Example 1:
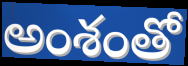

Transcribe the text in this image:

అంశంతో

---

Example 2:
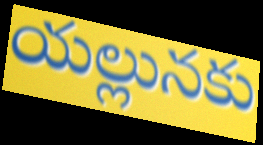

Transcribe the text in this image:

యల్లునకు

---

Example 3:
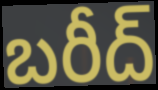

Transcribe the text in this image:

బరీద్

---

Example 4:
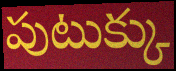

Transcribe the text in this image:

పుటుక్కు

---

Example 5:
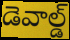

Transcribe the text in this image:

డెవాల్డ్